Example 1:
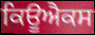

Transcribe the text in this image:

ਕਿਊਐਕਸ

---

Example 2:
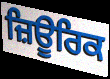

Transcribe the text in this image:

ਜ਼ਿਊਰਿਕ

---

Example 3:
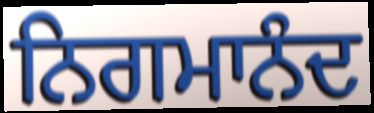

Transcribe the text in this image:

ਨਿਗਮਾਨੰਦ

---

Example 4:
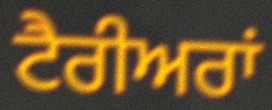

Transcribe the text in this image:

ਟੈਰੀਅਰਾਂ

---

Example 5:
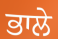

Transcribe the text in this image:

ਭਾਲੇ